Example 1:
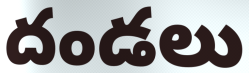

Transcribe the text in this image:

దండలు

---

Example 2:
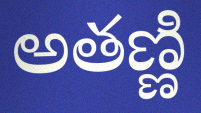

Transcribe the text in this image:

అతణ్ణి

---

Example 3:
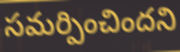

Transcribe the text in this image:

సమర్పించిందని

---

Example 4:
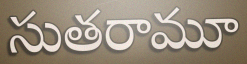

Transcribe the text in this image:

సుతరామూ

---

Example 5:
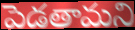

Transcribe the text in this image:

పెడతామని